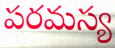
పరమస్య